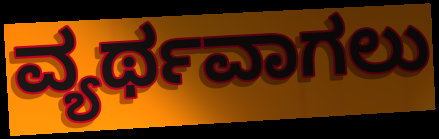
ವ್ಯರ್ಥವಾಗಲು